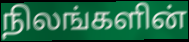
நிலங்களின்